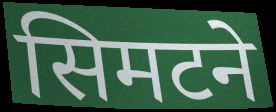
सिमटने